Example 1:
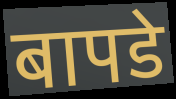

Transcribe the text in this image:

बापडे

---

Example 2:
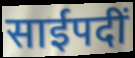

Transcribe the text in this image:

साईपदीं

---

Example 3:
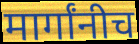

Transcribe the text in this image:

मार्गांनीच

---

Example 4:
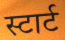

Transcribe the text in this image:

स्टार्ट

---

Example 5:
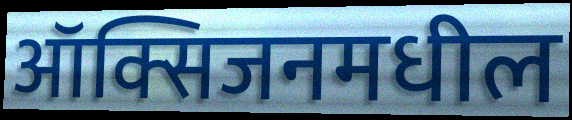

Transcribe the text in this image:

ऑक्सिजनमधील